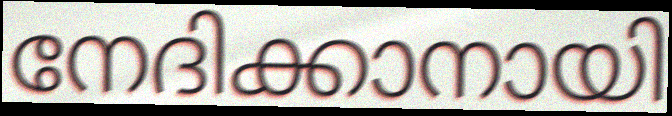
നേദിക്കാനായി